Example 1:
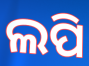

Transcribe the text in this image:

ଲପି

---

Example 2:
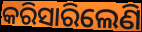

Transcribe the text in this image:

କରିସାରିଲେଣି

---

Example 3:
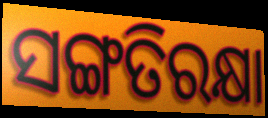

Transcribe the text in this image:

ସଙ୍ଗତିରକ୍ଷା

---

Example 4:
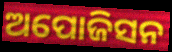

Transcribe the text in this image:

ଅପୋଜିସନ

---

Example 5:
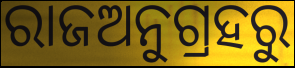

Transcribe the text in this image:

ରାଜଅନୁଗ୍ରହରୁ